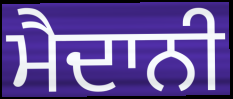
ਮੈਦਾਨੀ